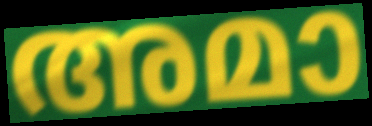
അമാ